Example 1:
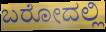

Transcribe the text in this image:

ಬರೋದಲ್ಲಿ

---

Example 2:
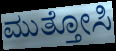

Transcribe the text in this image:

ಮುತ್ತೋಸಿ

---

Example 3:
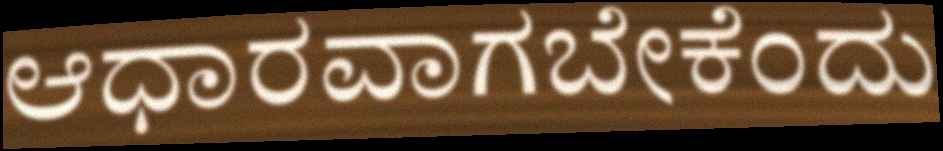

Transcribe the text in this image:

ಆಧಾರವಾಗಬೇಕೆಂದು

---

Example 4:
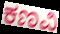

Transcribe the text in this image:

ಕಣವಿ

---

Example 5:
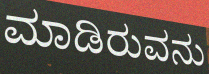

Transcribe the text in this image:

ಮಾಡಿರುವನು